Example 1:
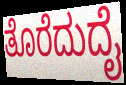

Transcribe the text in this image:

ತೊರೆದುದೈ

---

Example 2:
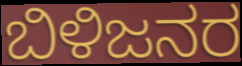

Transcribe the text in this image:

ಬಿಳಿಜನರ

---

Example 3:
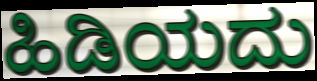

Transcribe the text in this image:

ಹಿಡಿಯದು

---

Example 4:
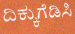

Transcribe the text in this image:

ದಿಕ್ಕುಗೆಡಿಸಿ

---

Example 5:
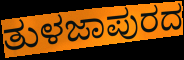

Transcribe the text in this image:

ತುಳಜಾಪುರದ